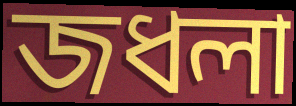
জধলা